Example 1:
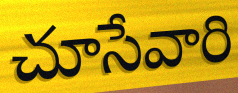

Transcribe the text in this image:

చూసేవారి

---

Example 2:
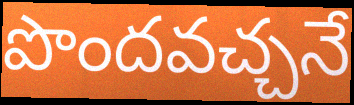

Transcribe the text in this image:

పొందవచ్చనే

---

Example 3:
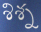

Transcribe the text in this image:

శిశ్న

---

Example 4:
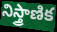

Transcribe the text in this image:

నిస్త్రాణిక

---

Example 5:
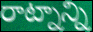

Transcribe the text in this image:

రాట్నాన్ని